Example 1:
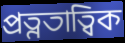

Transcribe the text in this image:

প্ৰত্নতাত্বিক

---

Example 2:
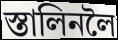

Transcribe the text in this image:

স্তালিনলৈ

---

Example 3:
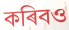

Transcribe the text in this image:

কৰিবও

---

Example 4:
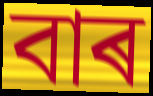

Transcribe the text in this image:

বাৰ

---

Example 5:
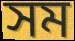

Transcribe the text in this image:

সম